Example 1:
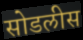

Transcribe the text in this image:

सोडलीस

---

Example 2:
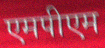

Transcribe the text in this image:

एमपीएम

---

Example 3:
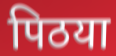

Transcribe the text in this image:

पिठया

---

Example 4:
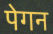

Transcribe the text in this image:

पेगन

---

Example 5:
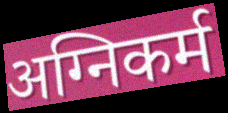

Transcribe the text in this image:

अग्निकर्म